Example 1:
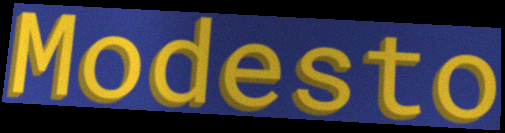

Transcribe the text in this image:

Modesto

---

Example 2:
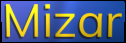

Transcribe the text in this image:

Mizar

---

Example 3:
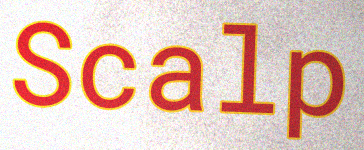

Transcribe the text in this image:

Scalp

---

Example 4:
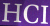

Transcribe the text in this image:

HCI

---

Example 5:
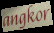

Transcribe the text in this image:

angkor